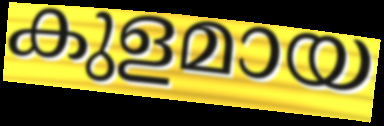
കുളമായ